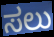
ಸಲು